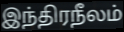
இந்திரநீலம்